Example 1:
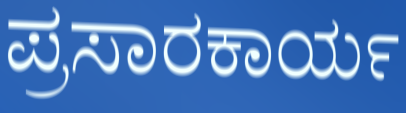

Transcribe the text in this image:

ಪ್ರಸಾರಕಾರ್ಯ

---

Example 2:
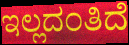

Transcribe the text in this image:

ಇಲ್ಲದಂತಿದೆ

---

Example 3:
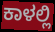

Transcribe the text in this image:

ಕಾಳಲ್ಲಿ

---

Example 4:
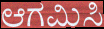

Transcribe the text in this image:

ಆಗಮಿಸಿ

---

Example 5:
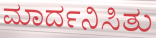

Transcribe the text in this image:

ಮಾರ್ದನಿಸಿತು